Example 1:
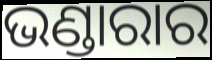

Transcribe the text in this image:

ଭଣ୍ଡାରାର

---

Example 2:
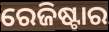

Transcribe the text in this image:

ରେଜିଷ୍ଟାର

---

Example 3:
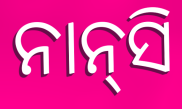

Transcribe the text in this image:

ନାନ୍‌ସି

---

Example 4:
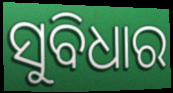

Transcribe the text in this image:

ସୁବିଧାର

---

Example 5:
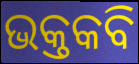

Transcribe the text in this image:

ଭକ୍ତକବି